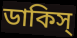
ডাকিস্